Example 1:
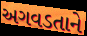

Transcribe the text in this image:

અગવડતાને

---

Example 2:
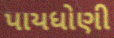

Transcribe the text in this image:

પાયધોણી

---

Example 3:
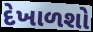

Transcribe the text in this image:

દેખાળશો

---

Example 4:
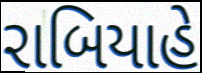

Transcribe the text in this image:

રાબિયાહે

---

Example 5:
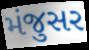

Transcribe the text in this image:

મંજુસર